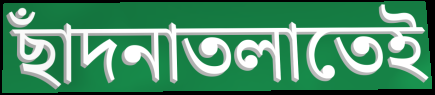
ছাঁদনাতলাতেই